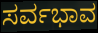
ಸರ್ವಭಾವ